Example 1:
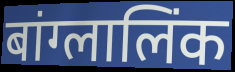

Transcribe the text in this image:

बांग्लालिंक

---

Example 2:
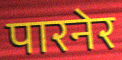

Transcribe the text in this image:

पारनेर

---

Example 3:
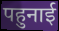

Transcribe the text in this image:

पहुनाई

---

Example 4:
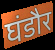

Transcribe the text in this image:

घंडौर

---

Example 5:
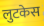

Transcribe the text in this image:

लुटकेस